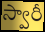
స్వారీ